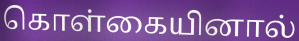
கொள்கையினால்